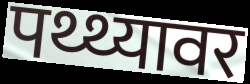
पथ्थ्यावर